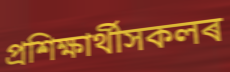
প্ৰশিক্ষাৰ্থীসকলৰ